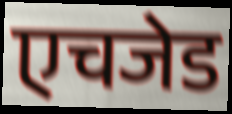
एचजेड